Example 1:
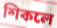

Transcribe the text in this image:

শিকলে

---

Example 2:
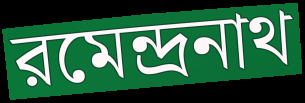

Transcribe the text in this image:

রমেন্দ্রনাথ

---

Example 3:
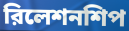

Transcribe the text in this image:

রিলেশনশিপ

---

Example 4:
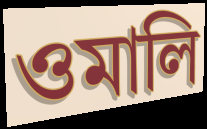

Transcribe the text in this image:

ওমালি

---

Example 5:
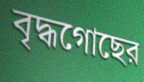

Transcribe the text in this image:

বৃদ্ধগোছের